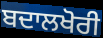
ਬਦਾਲਖੋਰੀ